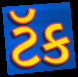
ટૅક